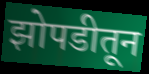
झोपडीतून